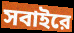
সবাইরে